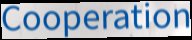
Cooperation